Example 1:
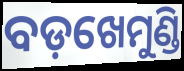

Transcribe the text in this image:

ବଡ଼ଖେମୁଣ୍ଡି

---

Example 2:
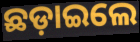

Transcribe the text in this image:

ଛଡ଼ାଇଲେ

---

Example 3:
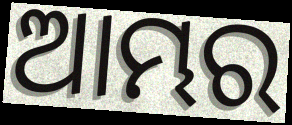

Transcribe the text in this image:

ଆମ୍ଭର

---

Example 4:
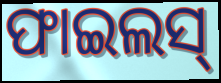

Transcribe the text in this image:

ଫାଇଲସ୍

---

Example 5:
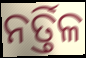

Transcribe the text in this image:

ନର୍ତ୍ତିଳ